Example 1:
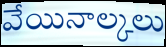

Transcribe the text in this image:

వేయినాల్కలు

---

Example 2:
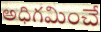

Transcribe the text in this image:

అధిగమించే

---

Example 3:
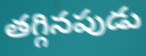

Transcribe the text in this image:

తగ్గినపుడు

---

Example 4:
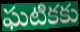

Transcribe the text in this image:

ఘటికకు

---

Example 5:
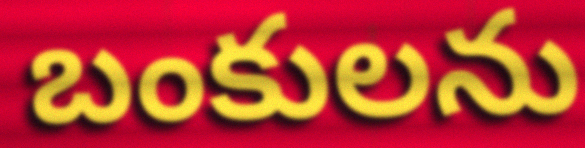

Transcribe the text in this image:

బంకులను